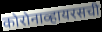
कोरोनाव्हायरसची